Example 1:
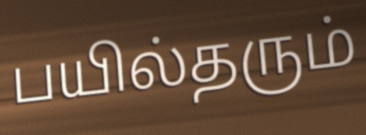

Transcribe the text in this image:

பயில்தரும்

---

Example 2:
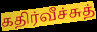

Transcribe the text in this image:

கதிர்வீச்சுத்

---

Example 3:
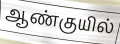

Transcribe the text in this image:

ஆண்குயில்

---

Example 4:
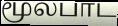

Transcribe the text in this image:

மூலபாட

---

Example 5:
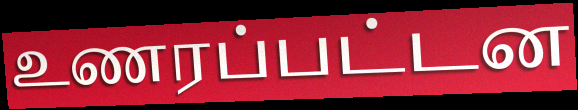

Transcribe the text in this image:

உணரப்பட்டன